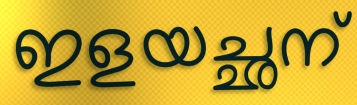
ഇളയച്ഛന്